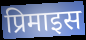
प्रिमाइस